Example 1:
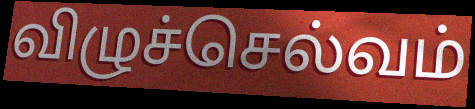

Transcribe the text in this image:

விழுச்செல்வம்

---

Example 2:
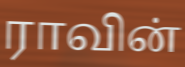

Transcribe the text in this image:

ராவின்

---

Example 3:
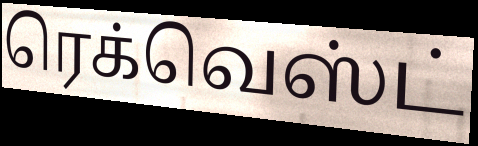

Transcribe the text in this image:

ரெக்வெஸ்ட்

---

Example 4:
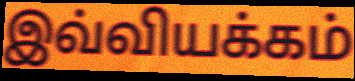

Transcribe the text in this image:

இவ்வியக்கம்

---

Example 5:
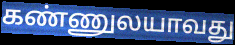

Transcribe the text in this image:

கண்ணுலயாவது